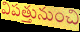
విపత్తునుంచి